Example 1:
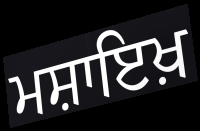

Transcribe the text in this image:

ਮਸ਼ਾਇਖ਼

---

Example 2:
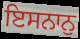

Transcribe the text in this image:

ਇਸਨਾਨੁ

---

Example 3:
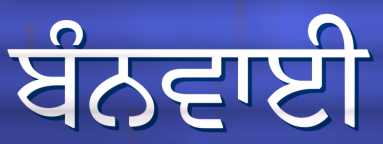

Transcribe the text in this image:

ਬੰਨਵਾਈ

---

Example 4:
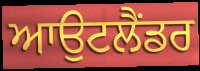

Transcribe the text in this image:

ਆਉਟਲੈਂਡਰ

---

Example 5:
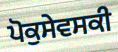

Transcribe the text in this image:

ਪੋਕੁਸੇਵਸਕੀ